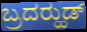
ಬ್ರದರ್‍ಹುಡ್